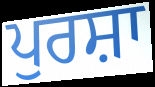
ਪੁਰਸ਼ਾ